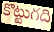
కొట్టుగది